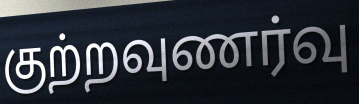
குற்றவுணர்வு